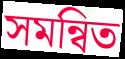
সমন্বিত